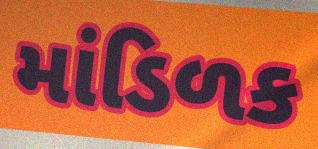
માંડિળક